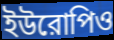
ইউরোপিও